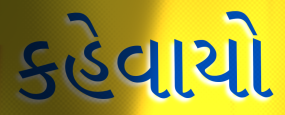
કહેવાયો